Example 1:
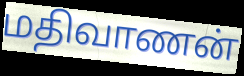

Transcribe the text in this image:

மதிவாணன்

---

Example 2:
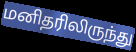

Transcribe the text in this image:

மனிதரிலிருந்து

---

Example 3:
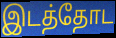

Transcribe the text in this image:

இடத்தோட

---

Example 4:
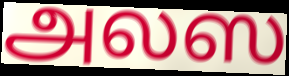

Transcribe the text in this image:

அலஸ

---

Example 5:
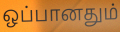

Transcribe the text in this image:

ஒப்பானதும்